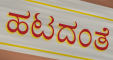
ಹಟದಂತೆ